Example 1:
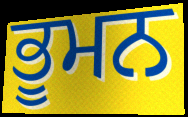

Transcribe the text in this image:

ਭੂਮਨ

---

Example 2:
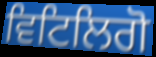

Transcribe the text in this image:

ਵਿਟਿਲਿਗੋ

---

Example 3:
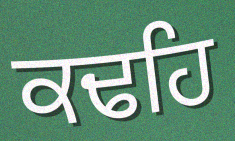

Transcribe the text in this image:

ਕਢਹਿ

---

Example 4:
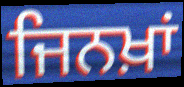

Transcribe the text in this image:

ਜਿਨਖ਼ਾਂ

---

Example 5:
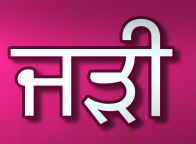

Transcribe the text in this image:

ਜੜੀ